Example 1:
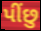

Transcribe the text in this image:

પીંછુ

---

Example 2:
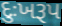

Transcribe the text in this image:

દુઃખરૂપ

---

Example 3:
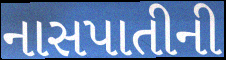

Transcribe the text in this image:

નાસપાતીની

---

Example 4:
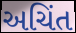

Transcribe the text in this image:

અચિંત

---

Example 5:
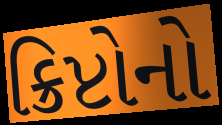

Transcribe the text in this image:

ક્રિપ્ટોનો